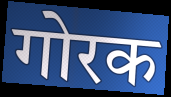
गोरक